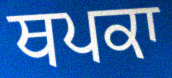
ਥਪਕਾ